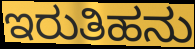
ಇರುತಿಹನು